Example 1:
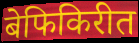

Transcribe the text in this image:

बेफिकिरीत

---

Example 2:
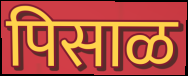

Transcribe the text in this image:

पिसाळ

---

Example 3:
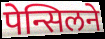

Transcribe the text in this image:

पेन्सिलने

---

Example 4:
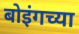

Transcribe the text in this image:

बोइंगच्या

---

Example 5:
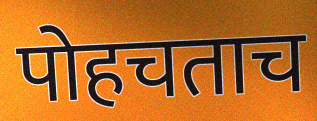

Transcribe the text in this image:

पोहचताच